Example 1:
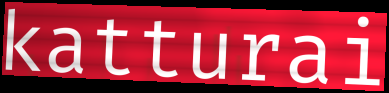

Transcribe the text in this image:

katturai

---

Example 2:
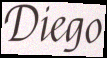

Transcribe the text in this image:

Diego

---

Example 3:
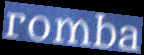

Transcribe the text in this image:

romba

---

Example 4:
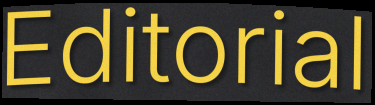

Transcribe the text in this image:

Editorial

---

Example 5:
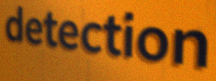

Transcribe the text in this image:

detection